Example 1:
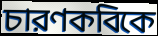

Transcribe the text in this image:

চারণকবিকে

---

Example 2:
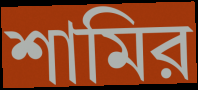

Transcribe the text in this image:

শামির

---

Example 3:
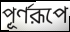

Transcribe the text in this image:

পূর্ণরূপে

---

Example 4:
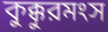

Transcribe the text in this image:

কুক্কুরমংস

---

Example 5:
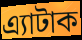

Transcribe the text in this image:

এ্যাটাক